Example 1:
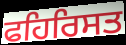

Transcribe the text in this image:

ਫਹਿਰਿਸਤ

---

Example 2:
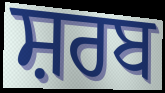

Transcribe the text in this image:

ਸ਼ਰਬ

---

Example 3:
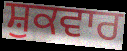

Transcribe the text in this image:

ਸ਼ੁਕਵਾਰ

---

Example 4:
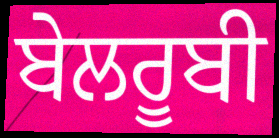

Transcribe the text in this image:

ਬੇਲਰੂਬੀ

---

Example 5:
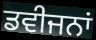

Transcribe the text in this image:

ਡਵੀਜਨਾਂ